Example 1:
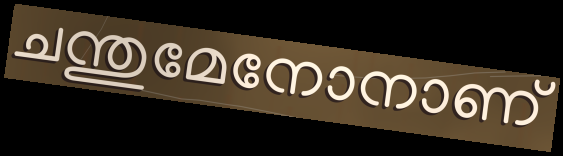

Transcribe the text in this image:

ചന്തുമേനോനാണ്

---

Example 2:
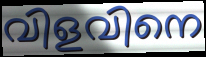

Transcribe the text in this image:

വിളവിനെ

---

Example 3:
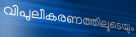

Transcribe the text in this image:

വിപുലീകരണത്തിലൂടെയും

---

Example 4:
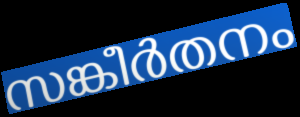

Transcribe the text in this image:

സങ്കീർതനം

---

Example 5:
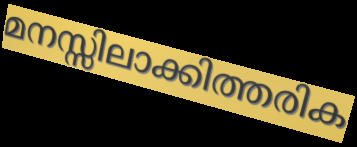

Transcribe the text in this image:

മനസ്സിലാക്കിത്തരിക